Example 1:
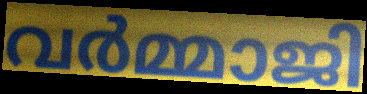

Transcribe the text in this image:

വർമ്മാജി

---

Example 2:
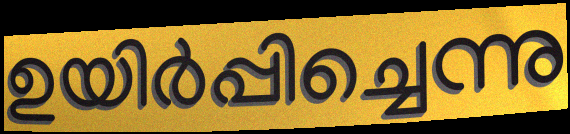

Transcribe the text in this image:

ഉയിർപ്പിച്ചെന്നു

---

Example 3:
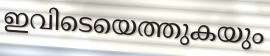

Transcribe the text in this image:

ഇവിടെയെത്തുകയും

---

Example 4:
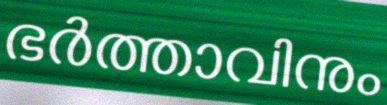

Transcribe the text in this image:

ഭർത്താവിനും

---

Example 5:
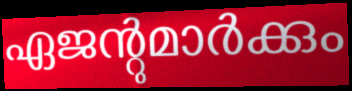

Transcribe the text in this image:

ഏജന്റുമാർക്കും